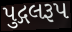
પુદ્ગલરૂપ